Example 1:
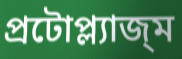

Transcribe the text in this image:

প্রটোপ্ল্যাজ্ম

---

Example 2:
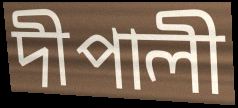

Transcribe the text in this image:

দীপালী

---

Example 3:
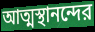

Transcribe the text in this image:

আত্মস্থানন্দের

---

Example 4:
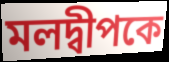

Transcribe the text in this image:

মলদ্বীপকে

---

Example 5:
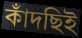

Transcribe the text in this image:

কাঁদছিই